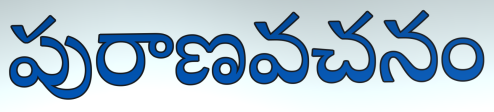
పురాణవచనం